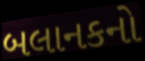
બલાનકનો